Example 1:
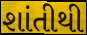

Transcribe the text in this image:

શાંતીથી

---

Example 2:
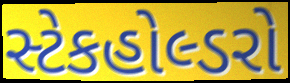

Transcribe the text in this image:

સ્ટેકહોલ્ડરો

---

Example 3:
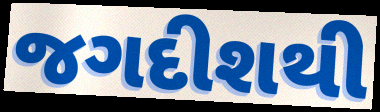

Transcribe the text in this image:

જગદીશથી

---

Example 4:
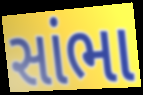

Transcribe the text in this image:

સાંભા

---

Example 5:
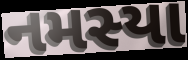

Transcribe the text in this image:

નમસ્યા